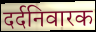
दर्दनिवारक